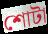
শোটা